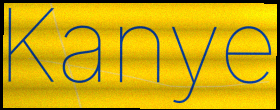
Kanye